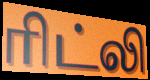
ரிட்லி